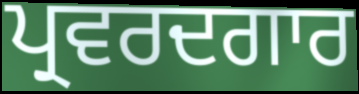
ਪ੍ਰਵਰਦਗਾਰ